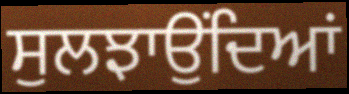
ਸੁਲਝਾਉਂਦਿਆਂ